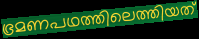
ഭ്രമണപഥത്തിലെത്തിയത്